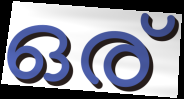
ഒര്